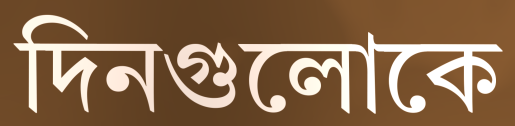
দিনগুলোকে